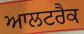
ਆਲਟਰੈਕ